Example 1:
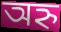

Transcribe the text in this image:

অহ্ন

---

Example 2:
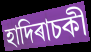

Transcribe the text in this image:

হাদিৰাচকী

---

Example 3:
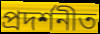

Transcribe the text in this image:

প্ৰদৰ্শনীত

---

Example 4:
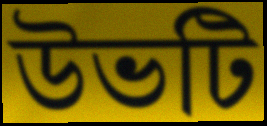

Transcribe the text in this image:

উভটি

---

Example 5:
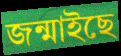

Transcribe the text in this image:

জন্মাইছে